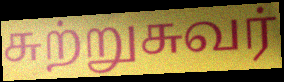
சுற்றுசுவர்